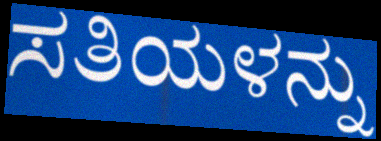
ಸತಿಯಳನ್ನು